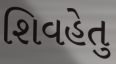
શિવહેતુ